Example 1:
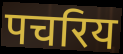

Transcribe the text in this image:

पचरिय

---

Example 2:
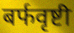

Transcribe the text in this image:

बर्फवृष्टी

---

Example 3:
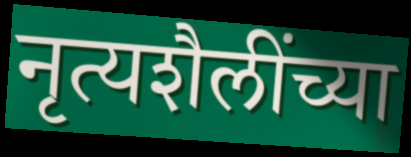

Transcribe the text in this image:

नृत्यशैलींच्या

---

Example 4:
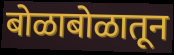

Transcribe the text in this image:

बोळाबोळातून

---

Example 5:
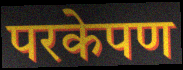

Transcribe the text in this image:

परकेपण